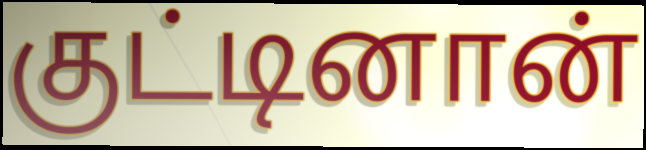
குட்டினான்